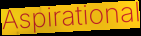
Aspirational